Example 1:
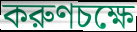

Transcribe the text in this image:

করুণচক্ষে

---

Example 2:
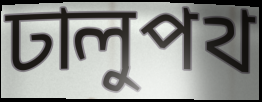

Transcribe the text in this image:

ঢালুপথ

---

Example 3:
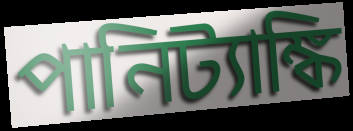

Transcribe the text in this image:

পানিট্যাঙ্কি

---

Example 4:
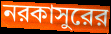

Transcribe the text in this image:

নরকাসুরের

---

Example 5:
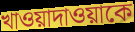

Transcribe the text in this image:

খাওয়াদাওয়াকে